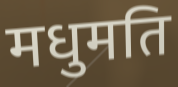
मधुमति